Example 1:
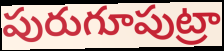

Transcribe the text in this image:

పురుగూపుట్రా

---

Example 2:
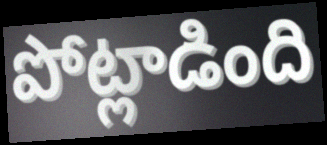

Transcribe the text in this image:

పోట్లాడింది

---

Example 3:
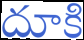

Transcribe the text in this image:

దూకి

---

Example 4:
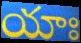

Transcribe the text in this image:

యాః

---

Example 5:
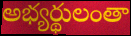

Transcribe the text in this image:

అభ్యర్థులంతా